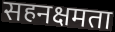
सहनक्षमता